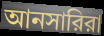
আনসারিরা